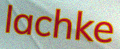
lachke